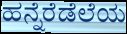
ಹನ್ನೆರೆಡೆಲೆಯ